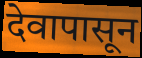
देवापासून